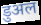
डुअल